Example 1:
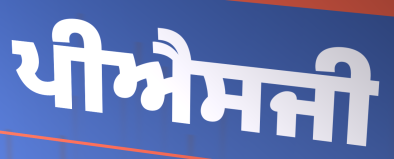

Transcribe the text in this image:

ਪੀਐਸਜੀ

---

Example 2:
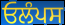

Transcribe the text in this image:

ਓਲੰਪਸ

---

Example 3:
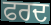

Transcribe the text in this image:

ਫਰਦ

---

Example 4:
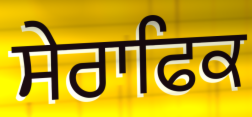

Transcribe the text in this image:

ਸੇਰਾਫਿਕ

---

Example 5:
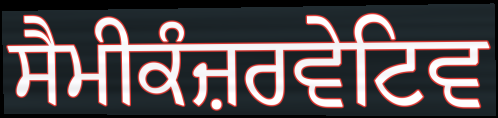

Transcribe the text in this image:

ਸੈਮੀਕੰਜ਼ਰਵੇਟਿਵ